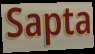
Sapta